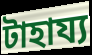
টাহায্য